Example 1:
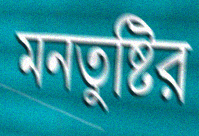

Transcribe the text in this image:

মনতুষ্টির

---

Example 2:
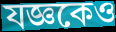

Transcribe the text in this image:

যজ্ঞকেও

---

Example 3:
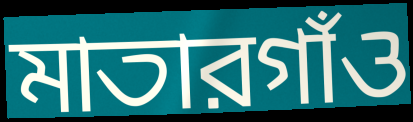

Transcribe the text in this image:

মাতারগাঁও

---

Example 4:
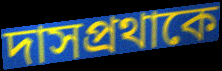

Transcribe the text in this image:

দাসপ্রথাকে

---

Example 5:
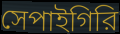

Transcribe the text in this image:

সেপাইগিরি